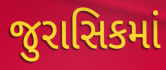
જુરાસિકમાં